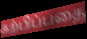
கற்பிப்பதை